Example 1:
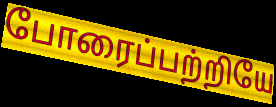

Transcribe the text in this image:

போரைப்பற்றியே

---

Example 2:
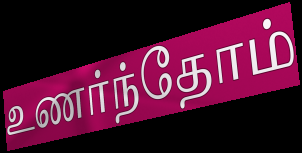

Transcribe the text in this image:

உணர்ந்தோம்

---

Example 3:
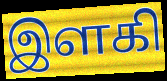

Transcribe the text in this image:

இளகி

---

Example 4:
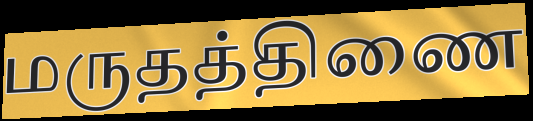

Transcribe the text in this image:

மருதத்திணை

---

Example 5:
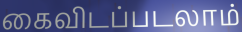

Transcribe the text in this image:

கைவிடப்படலாம்